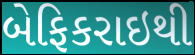
બેફિકરાઇથી